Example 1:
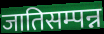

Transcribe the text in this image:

जातिसम्पन्न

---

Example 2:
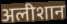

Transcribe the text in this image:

अलीशान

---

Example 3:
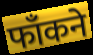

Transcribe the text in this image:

फाँकने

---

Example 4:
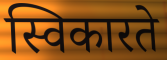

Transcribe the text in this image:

स्विकारते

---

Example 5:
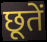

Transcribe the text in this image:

छूतें